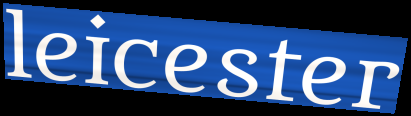
leicester